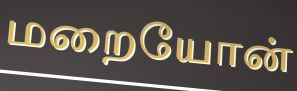
மறையோன்